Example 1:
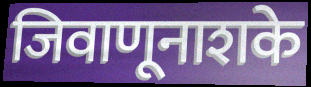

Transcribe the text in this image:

जिवाणूनाशके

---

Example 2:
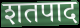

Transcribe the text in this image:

शतपाद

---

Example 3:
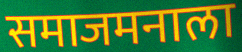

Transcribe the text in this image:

समाजमनाला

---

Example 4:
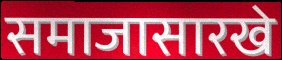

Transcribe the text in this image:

समाजासारखे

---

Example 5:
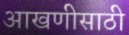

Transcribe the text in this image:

आखणीसाठी